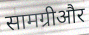
सामग्रीऔर